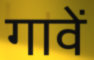
गावें